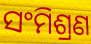
ସଂମିଶ୍ରଣ